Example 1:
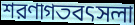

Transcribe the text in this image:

শরণাগতবৎসলা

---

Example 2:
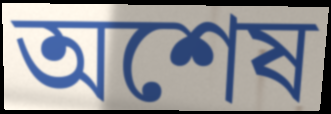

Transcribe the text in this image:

অশেষ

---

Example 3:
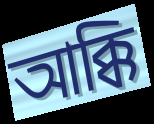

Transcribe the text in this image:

আক্কি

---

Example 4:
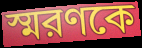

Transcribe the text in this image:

স্মরণকে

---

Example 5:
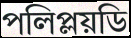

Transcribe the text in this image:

পলিপ্লয়ডি